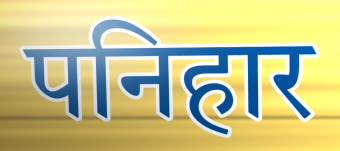
पनिहार